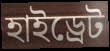
হাইড্রেট